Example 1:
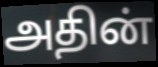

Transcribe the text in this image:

அதின்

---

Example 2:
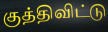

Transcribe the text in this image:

குத்திவிட்டு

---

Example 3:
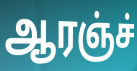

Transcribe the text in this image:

ஆரஞ்ச்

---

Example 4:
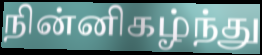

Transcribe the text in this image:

நின்னிகழ்ந்து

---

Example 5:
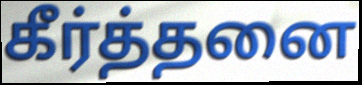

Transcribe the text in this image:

கீர்த்தனை